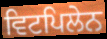
ਵਿਟਪਿਲੇਨ